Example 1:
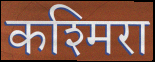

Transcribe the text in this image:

कश्मिरा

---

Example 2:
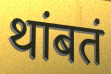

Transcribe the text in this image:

थांबतं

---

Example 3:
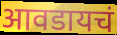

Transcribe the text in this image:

आवडायचं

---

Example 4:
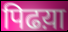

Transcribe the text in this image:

पिढय़ा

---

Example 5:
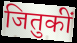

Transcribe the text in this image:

जितुकीं